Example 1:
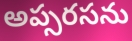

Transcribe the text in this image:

అప్సరసను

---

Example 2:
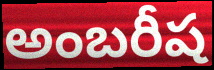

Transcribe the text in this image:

అంబరీష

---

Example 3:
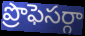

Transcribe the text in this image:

ప్రొఫెసర్గా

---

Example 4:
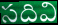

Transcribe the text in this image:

సదివి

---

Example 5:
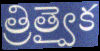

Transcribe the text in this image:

త్రిత్వైక